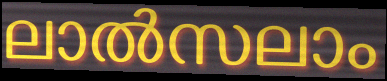
ലാൽസലാം